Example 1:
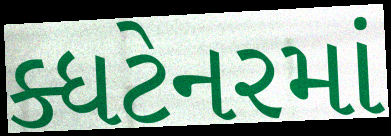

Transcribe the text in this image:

ક્ધટેનરમાં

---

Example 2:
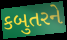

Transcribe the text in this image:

કબુતરને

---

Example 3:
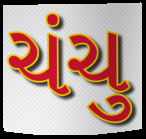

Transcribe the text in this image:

ચંચુ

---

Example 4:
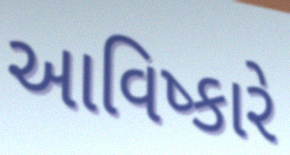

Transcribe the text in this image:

આવિષ્કારે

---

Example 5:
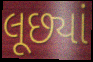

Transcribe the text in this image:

લૂછ્યાં